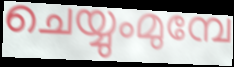
ചെയ്യുംമുമ്പേ